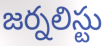
జర్నలిస్టు